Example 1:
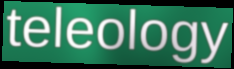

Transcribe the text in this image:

teleology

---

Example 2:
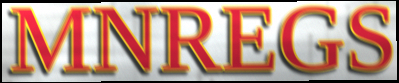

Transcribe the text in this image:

MNREGS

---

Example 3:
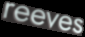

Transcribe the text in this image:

reeves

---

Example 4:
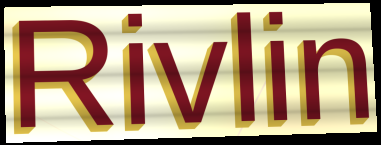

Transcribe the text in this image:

Rivlin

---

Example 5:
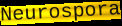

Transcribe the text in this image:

Neurospora